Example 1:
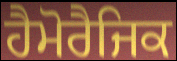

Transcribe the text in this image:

ਹੈਮੋਰੈਜਿਕ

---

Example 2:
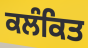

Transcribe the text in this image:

ਕਲੰਕਿਤ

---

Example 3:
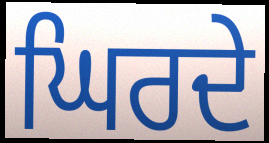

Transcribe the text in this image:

ਘਿਰਦੇ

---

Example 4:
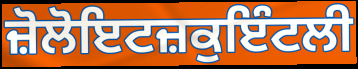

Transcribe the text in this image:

ਜ਼ੋਲੋਇਟਜ਼ਕੁਇੰਟਲੀ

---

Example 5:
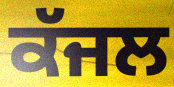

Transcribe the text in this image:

ਕੱਜਲ